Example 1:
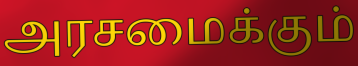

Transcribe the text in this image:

அரசமைக்கும்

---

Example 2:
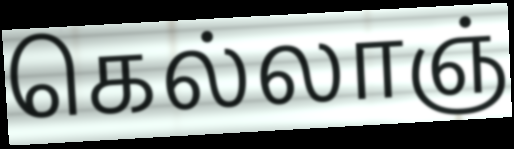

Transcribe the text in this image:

கெல்லாஞ்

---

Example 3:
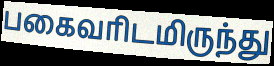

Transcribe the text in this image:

பகைவரிடமிருந்து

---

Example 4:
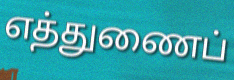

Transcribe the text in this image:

எத்துணைப்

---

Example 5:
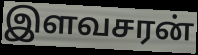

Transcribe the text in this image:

இளவசரன்